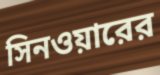
সিনওয়ারের